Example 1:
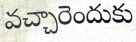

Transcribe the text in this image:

వచ్చారెందుకు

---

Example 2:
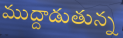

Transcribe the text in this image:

ముద్దాడుతున్న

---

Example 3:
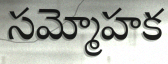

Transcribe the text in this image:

సమ్మోహక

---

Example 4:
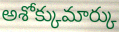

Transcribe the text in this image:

అశోక్కుమార్కు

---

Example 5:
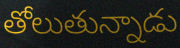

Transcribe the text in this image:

తోలుతున్నాడు